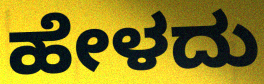
ಹೇಳದು